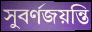
সুবর্ণজয়ন্তি